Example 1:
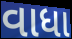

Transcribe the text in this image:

વાધા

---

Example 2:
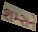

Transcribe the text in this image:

શમ્સને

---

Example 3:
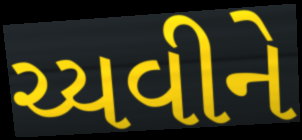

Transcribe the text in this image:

ચ્યવીને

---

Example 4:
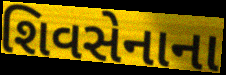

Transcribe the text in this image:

શિવસેનાના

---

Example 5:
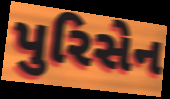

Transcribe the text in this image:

પુરિસેન